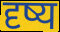
दृष्य